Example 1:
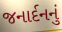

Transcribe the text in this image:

જનાર્દનનું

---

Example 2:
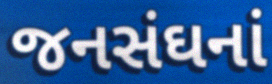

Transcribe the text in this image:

જનસંઘનાં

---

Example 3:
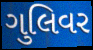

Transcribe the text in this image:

ગુલિવર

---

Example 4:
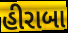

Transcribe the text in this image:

હીરાબા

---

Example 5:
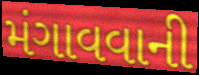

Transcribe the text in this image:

મંગાવવાની